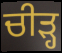
ਚੀੜ੍ਹ